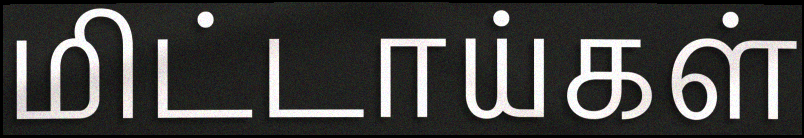
மிட்டாய்கள்